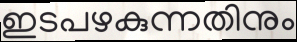
ഇടപഴകുന്നതിനും